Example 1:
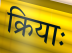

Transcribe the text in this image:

क्रियाः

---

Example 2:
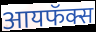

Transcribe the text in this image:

आयफॅक्स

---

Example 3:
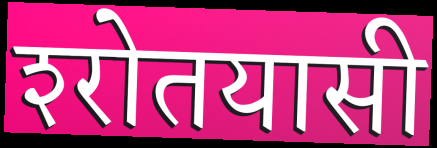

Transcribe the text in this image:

श्रोतयासी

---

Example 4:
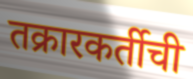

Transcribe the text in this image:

तक्रारकर्तीची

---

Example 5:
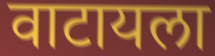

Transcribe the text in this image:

वाटायला